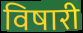
विषारी